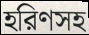
হরিণসহ